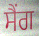
ਸੈਂਗ